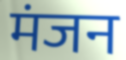
मंजन